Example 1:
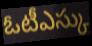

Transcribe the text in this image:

ఓటీఎస్కు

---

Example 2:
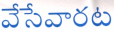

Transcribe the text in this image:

వేసేవారట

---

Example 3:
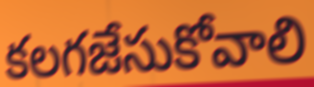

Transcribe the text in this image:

కలగజేసుకోవాలి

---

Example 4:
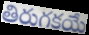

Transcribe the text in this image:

తిరుగకయే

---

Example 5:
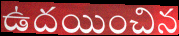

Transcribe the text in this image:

ఉదయించిన